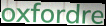
oxfordre